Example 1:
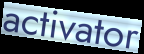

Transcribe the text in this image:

activator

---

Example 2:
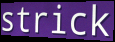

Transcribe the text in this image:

strick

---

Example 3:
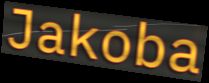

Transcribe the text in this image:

Jakoba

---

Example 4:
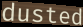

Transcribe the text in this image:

dusted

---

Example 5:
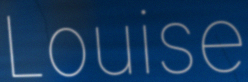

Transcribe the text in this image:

Louise